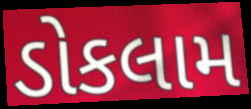
ડોકલામ